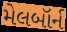
મેલબૉર્ન